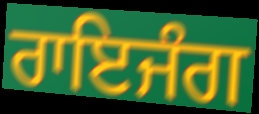
ਰਾਇਜੰਗ